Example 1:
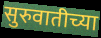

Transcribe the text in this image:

सुरुवातीच्या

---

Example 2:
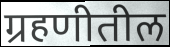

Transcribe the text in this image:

ग्रहणीतील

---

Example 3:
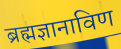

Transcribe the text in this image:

ब्रह्मज्ञानाविण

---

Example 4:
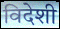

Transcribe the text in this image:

विदेशी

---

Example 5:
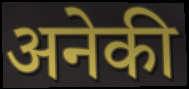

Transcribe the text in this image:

अनेकी